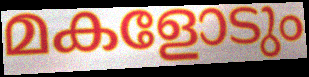
മകളോടും